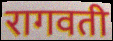
रागवती